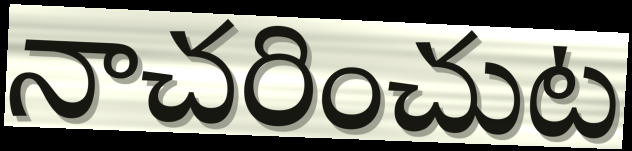
నాచరించుట